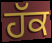
ਹੱਕ